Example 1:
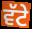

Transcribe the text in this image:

ਵੱਟੇ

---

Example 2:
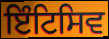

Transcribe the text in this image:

ਇੰਟਿਸਿਵ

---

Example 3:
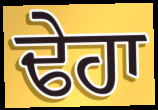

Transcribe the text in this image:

ਢੇਹਾ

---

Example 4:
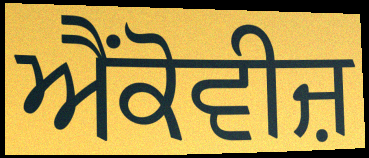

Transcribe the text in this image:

ਐਂਕੋਵੀਜ਼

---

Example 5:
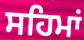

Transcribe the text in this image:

ਸਹਿਮਾਂ